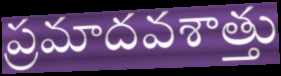
ప్రమాదవశాత్తు